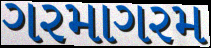
ગરમાગરમ